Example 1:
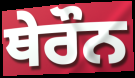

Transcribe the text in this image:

ਥੇਰੌਨ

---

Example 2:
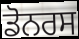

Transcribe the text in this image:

ਡੋਨਰਸ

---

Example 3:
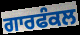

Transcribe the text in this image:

ਗਾਰਫੰਕਲ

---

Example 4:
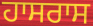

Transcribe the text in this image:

ਹਾਸਰਾਸ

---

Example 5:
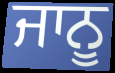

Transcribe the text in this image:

ਜਾਨੂ